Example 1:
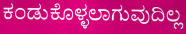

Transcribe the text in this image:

ಕಂಡುಕೊಳ್ಳಲಾಗುವುದಿಲ್ಲ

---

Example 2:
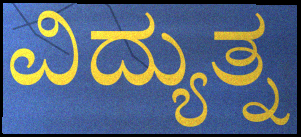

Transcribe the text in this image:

ವಿದ್ಯುತ್ನ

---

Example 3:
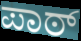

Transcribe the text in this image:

ಪಾಠ್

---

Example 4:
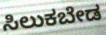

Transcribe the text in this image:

ಸಿಲುಕಬೇಡ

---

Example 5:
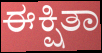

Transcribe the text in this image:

ಈಕ್ಷಿತಾ